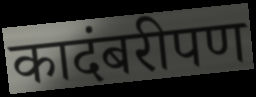
कादंबरीपण